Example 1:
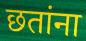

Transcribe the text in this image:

छतांना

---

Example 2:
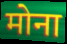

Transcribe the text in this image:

मोना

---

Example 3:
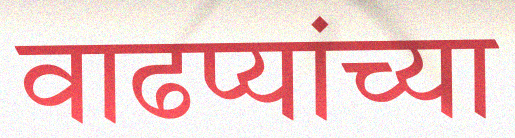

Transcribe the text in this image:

वाढप्यांच्या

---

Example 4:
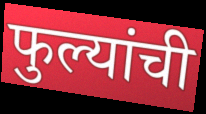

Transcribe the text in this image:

फुल्यांची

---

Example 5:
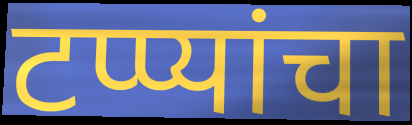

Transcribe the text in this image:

टप्प्यांचा